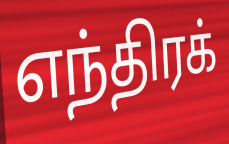
எந்திரக்